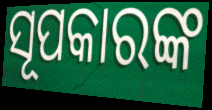
ସୂପକାରଙ୍କ